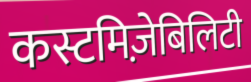
कस्टमिज़ेबिलिटी